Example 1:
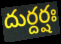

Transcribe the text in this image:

దుర్దర్షః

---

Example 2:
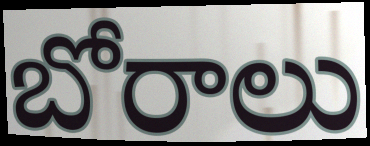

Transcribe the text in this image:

బోరాలు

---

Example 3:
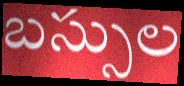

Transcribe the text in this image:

బస్సుల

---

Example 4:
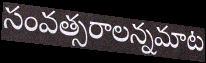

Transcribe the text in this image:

సంవత్సరాలన్నమాట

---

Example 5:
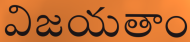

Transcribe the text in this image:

విజయతాం